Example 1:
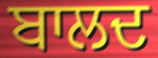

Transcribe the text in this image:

ਬਾਲਦ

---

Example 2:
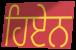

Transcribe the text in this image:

ਹਿਏਨ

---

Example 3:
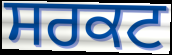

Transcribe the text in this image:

ਸਰਕਟ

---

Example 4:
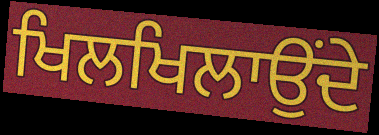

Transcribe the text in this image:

ਖਿਲਖਿਲਾਉਂਦੇ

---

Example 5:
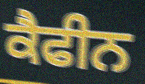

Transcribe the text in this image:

ਕੈਫੀਨ